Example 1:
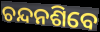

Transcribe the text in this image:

ଚନ୍ଦନଶିବେ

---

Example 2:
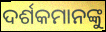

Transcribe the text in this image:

ଦର୍ଶକମାନଙ୍କୁ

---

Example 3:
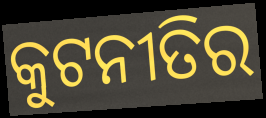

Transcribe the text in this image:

କୁଟନୀତିର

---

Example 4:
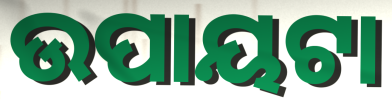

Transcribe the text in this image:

ଉପାୟଟା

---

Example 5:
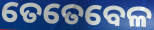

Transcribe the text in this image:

ତେତେବେଳ